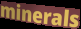
minerals